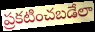
ప్రకటించబడేలా